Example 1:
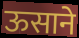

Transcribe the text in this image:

ऊसाने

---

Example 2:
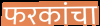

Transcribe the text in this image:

फरकांचा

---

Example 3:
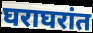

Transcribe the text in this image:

घराघरांत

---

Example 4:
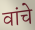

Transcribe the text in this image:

वांचे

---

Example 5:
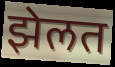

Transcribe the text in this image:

झेलत